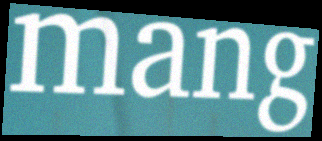
mang